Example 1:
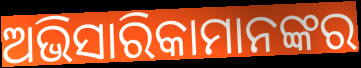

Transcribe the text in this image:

ଅଭିସାରିକାମାନଙ୍କର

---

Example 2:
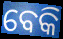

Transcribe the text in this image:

ବେକି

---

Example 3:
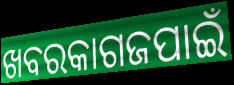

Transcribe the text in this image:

ଖବରକାଗଜପାଇଁ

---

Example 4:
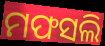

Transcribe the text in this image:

ମଫସଲି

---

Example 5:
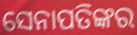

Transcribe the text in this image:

ସେନାପତିଙ୍କର